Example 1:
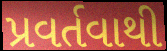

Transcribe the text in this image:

પ્રવર્તવાથી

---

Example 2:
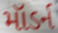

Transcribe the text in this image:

મૉડર્ન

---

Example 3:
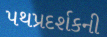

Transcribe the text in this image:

પથપ્રદર્શકની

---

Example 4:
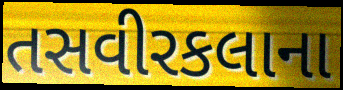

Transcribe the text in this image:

તસવીરકલાના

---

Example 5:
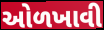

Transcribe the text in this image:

ઓળખાવી